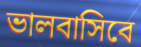
ভালবাসিবে